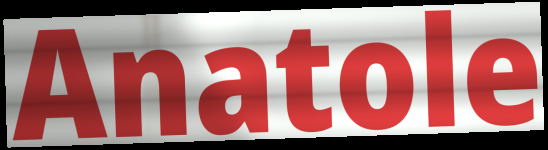
Anatole